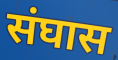
संघास